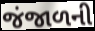
જંજાળની